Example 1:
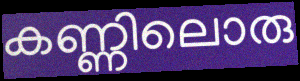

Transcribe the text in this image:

കണ്ണിലൊരു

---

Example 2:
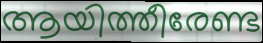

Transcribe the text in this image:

ആയിത്തീരേണ്ട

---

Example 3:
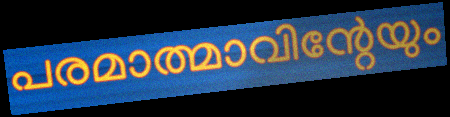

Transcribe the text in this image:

പരമാത്മാവിന്റേയും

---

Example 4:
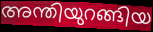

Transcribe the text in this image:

അന്തിയുറങ്ങിയ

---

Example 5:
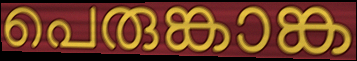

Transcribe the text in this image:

പെരുങ്കാങ്ക